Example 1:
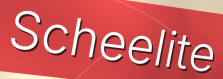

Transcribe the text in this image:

Scheelite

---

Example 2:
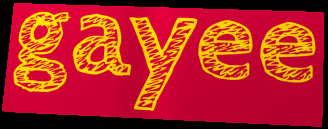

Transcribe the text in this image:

gayee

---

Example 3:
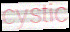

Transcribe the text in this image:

cystic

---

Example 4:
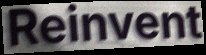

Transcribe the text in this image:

Reinvent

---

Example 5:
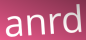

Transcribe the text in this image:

anrd